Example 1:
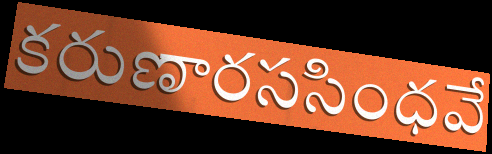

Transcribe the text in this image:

కరుణారససింధవే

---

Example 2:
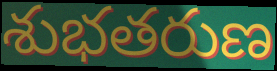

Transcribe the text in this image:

శుభతరుణ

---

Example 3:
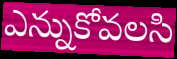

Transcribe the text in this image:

ఎన్నుకోవలసి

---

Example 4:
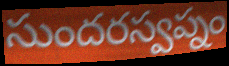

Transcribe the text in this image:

సుందరస్వప్నం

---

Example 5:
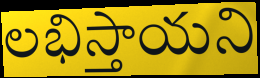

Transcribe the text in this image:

లభిస్తాయని